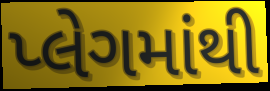
પ્લેગમાંથી